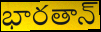
భారతాన్